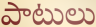
పాటులు